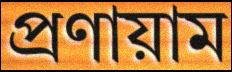
প্রণায়াম